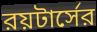
রয়টার্সের